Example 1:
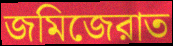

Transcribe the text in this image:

জমিজেরাত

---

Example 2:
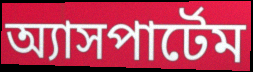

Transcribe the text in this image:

অ্যাসপার্টেম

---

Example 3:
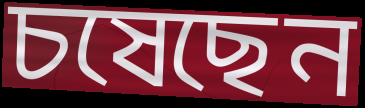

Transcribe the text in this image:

চষেছেন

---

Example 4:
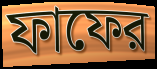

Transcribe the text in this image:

ফাফের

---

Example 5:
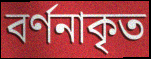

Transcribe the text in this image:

বর্ণনাকৃত